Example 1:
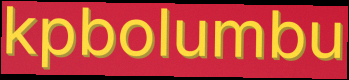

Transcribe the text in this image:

kpbolumbu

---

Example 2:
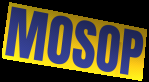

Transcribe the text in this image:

MOSOP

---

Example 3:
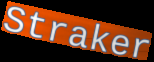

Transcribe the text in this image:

Straker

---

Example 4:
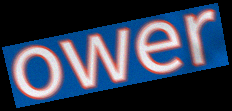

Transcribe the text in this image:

ower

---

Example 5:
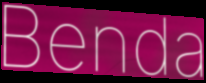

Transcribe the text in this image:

Benda